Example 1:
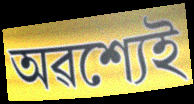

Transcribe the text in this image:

অৱশ্যেই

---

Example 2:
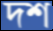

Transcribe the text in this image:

দশ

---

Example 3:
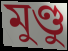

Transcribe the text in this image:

মুণ্ডু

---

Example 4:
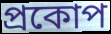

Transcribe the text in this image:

প্ৰকোপ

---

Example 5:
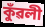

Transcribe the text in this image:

কুঁৱলী